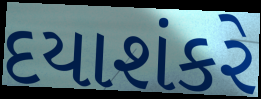
દયાશંકરે